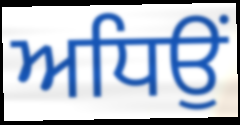
ਅਧਿਉਂ